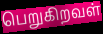
பெறுகிறவள்